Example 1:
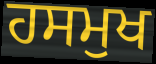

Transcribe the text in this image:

ਹਸਮੁਖ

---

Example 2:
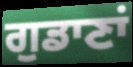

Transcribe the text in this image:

ਗੁਡਾਣਾਂ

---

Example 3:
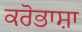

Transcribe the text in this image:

ਕਰੋਭਾਸ਼ਾ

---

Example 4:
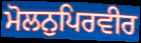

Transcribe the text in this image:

ਮੋਲਨੁਪਿਰਵੀਰ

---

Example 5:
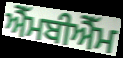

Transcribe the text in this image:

ਐੱਮਬੀਐੱਮ